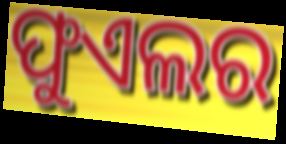
ଫୁଏଲର